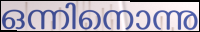
ഒന്നിനൊന്നു